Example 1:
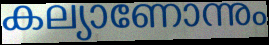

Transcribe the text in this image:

കല്യാണോന്നും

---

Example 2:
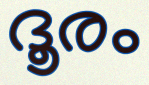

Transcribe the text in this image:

ദൂരം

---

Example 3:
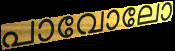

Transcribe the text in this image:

പാവോലോ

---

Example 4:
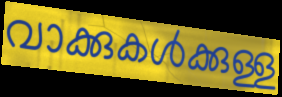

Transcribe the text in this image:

വാക്കുകൾക്കുള്ള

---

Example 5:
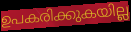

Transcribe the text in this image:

ഉപകരിക്കുകയില്ല